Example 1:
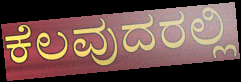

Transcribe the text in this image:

ಕೆಲವುದರಲ್ಲಿ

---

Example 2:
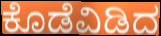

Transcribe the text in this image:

ಕೊಡೆವಿಡಿದ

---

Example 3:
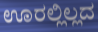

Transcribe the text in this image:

ಊರಲ್ಲಿಲ್ಲದ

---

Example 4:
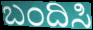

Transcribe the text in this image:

ಬಂದಿಸಿ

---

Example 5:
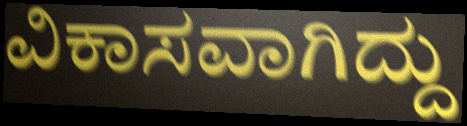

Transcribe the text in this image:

ವಿಕಾಸವಾಗಿದ್ದು